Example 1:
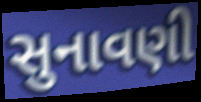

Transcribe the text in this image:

સુનાવણી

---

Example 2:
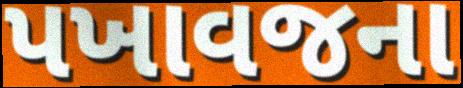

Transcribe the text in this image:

પખાવજના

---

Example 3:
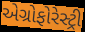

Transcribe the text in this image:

એગ્રોફોરેસ્ટ્રી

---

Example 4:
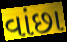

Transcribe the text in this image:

વાંછા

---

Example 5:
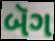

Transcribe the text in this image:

બૅગ